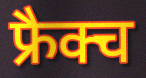
फ्रैक्च